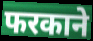
फरकाने